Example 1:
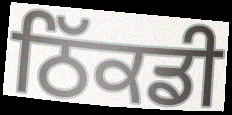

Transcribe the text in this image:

ਠਿੱਕਡੀ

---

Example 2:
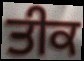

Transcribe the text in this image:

ਤੀਕ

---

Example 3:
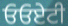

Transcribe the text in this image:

ਓਓਏਟੀ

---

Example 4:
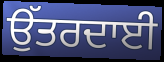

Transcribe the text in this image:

ਉੱਤਰਦਾਈ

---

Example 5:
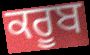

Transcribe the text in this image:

ਕਰੂਬ